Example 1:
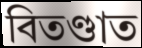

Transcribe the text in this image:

বিতণ্ডাত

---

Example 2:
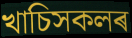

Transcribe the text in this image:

খাচিসকলৰ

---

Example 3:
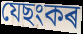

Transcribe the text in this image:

যেছংকৰ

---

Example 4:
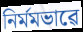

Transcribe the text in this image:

নিৰ্মমভাৱে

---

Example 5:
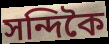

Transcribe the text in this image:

সন্দিকৈ